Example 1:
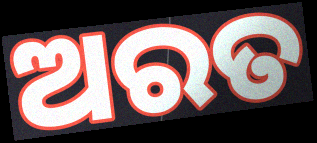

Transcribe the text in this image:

ଅରତ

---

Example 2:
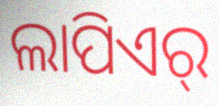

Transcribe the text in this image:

ଲାପିଏର୍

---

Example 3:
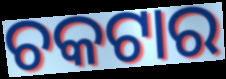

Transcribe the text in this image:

ଚକଟାର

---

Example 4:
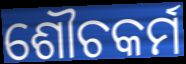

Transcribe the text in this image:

ଶୌଚକର୍ମ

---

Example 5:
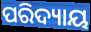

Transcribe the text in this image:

ପରିଦ୍ୟାୟ